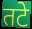
तटे